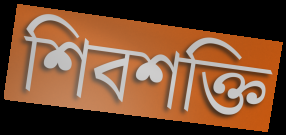
শিবশক্তি